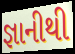
જ્ઞાનીથી